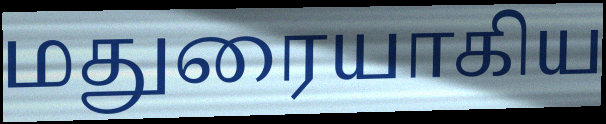
மதுரையாகிய